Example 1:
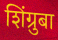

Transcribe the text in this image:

शिंग्रुबा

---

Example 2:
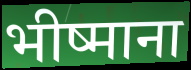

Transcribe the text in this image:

भीष्माना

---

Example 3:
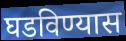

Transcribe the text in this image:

घडविण्यास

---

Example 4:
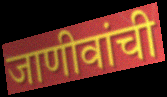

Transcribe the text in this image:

जाणीवांची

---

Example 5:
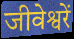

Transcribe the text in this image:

जीवेश्वरें